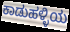
ಕಾಡುಹಳ್ಳಿಯ